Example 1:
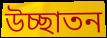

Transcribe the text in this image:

উচ্ছাতন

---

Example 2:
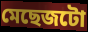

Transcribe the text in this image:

মেছেজটো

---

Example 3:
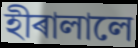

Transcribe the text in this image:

হীৰালালে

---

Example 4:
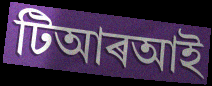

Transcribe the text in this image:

টিআৰআই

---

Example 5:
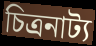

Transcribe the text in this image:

চিত্ৰনাট্য